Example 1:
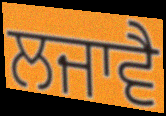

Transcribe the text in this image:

ਲਜਾਵੈ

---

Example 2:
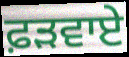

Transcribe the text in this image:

ਫ਼ੜਵਾਏ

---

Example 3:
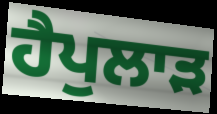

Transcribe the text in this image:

ਹੈਪੁਲਾੜ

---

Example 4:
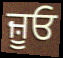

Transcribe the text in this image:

ਜ਼ੂਓ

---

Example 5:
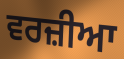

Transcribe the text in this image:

ਵਰਜ਼ੀਆ